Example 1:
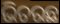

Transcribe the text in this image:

ଭିତରଛ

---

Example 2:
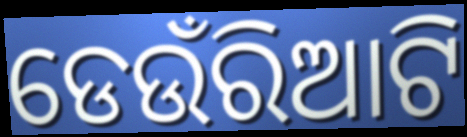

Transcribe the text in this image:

ଡେଉଁରିଆଟି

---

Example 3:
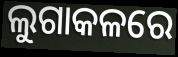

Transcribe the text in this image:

ଲୁଗାକଳରେ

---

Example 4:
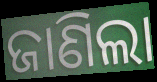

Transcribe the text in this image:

ଜାଣିଲା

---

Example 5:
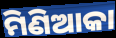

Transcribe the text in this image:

ମିଣିଆକା